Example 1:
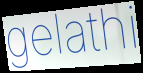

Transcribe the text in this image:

gelathi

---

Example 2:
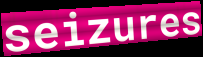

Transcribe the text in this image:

seizures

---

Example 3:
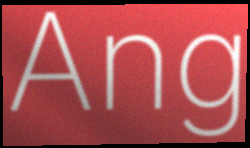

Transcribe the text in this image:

Ang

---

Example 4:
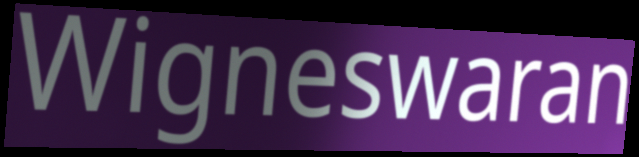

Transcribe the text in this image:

Wigneswaran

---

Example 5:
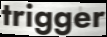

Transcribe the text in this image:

trigger